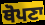
ਥੋਪਣਾ